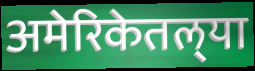
अमेरिकेतल्या